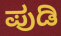
ಪುಡಿ